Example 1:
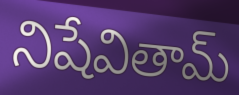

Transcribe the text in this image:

నిషేవితామ్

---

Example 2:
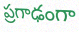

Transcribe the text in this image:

ప్రగాఢంగా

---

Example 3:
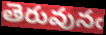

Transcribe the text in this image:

తెరువునఁ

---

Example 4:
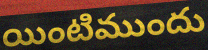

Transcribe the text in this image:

యింటిముందు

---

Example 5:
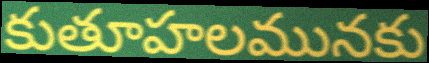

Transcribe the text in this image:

కుతూహలమునకు